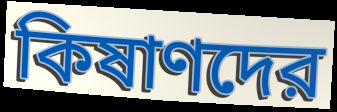
কিষাণদের